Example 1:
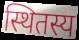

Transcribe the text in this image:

स्थितस्य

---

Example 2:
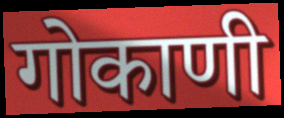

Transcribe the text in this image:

गोकाणी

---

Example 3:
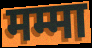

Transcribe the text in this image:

मम्मा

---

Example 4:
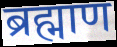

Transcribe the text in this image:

ब्रह्माण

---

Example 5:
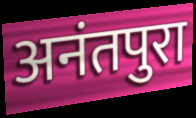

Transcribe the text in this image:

अनंतपुरा